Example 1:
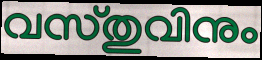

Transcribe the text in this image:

വസ്തുവിനും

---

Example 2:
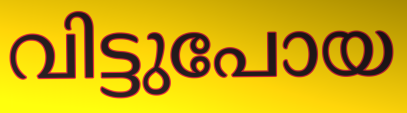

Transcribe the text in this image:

വിട്ടുപോയ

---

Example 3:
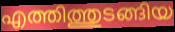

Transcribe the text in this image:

എത്തിത്തുടങ്ങിയ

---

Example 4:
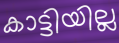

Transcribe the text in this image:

കാട്ടിയില്ല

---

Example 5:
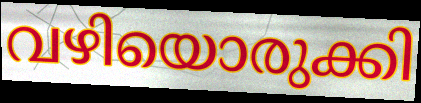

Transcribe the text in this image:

വഴിയൊരുക്കി